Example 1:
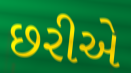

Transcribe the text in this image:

છરીએ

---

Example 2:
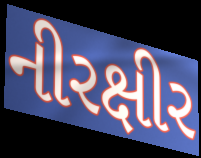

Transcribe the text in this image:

નીરક્ષીર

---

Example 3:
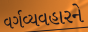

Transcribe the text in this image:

વર્ગવ્યવહારને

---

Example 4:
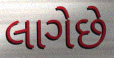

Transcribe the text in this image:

લાગેછે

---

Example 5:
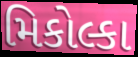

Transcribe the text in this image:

મિકોલ્કા